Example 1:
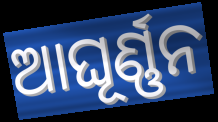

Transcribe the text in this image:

ଆଘୂର୍ଣ୍ଣନ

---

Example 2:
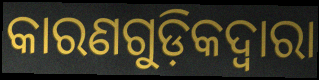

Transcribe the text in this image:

କାରଣଗୁଡ଼ିକଦ୍ବାରା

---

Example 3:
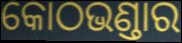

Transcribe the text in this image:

କୋଠଭଣ୍ଡାର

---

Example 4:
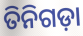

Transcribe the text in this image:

ତିନିଗଡ଼ା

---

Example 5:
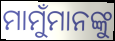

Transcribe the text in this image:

ମାମୁଁମାନଙ୍କୁ